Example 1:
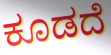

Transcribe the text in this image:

ಕೂಡದೆ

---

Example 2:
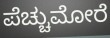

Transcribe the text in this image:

ಪೆಚ್ಚುಮೋರೆ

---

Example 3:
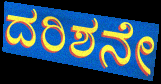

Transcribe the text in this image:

ದರಿಶನೇ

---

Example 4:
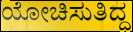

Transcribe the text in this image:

ಯೋಚಿಸುತಿದ್ದ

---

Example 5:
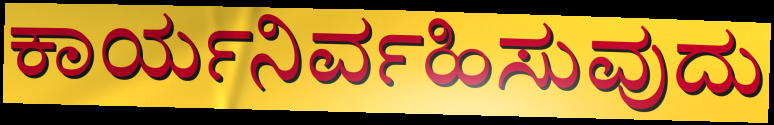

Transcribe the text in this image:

ಕಾರ್ಯನಿರ್ವಹಿಸುವುದು